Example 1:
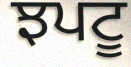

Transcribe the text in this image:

ਝਪਟੂ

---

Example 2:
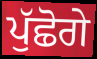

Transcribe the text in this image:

ਪੁੱਛੋਗੇ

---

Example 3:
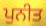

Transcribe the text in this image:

ਪੁਨੀਤ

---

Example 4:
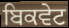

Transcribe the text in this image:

ਬਿਕਵੇਟ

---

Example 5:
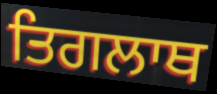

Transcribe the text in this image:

ਤਿਗਲਾਥ